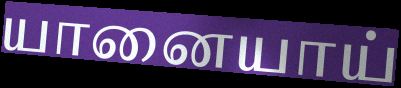
யானையாய்